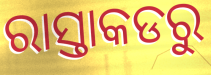
ରାସ୍ତାକଡରୁ